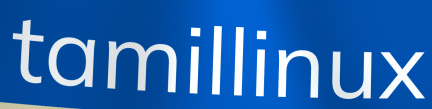
tamillinux